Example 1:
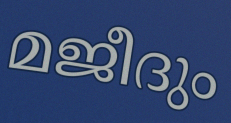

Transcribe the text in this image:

മജീദും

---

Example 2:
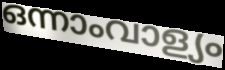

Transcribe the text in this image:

ഒന്നാംവാള്യം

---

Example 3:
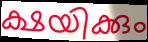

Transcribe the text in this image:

ക്ഷയിക്കും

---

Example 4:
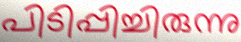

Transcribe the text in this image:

പിടിപ്പിച്ചിരുന്നു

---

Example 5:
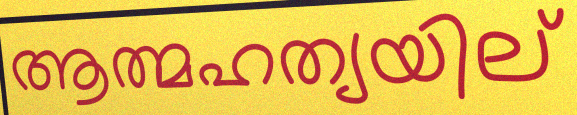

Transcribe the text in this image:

ആത്മഹത്യയില്